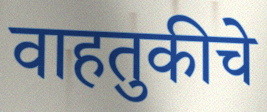
वाहतुकीचे